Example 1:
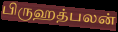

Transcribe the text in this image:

பிருஹத்பலன்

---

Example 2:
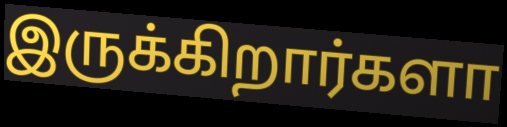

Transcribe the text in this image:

இருக்கிறார்களா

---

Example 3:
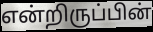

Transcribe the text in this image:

என்றிருப்பின்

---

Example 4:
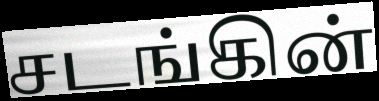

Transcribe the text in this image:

சடங்கின்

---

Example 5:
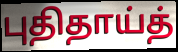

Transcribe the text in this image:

புதிதாய்த்